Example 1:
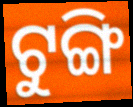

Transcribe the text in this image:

ଟୁଙ୍ଗି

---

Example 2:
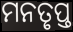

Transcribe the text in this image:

ମନତୃପ୍ତ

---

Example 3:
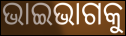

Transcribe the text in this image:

ଭାଇଭାଗକୁ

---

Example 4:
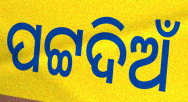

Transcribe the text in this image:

ପଟ୍ଟଦିଅଁ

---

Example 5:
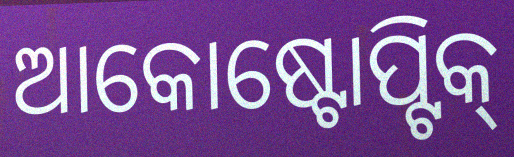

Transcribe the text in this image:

ଆକୋଷ୍ଟୋପ୍ଟିକ୍